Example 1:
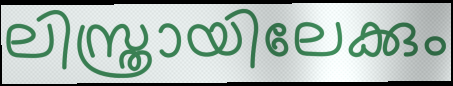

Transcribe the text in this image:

ലിസ്ത്രായിലേക്കും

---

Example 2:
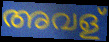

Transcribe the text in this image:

അവള്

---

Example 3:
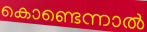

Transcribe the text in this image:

കൊണ്ടെന്നാൽ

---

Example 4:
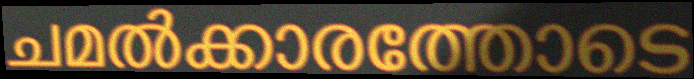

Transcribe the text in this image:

ചമൽക്കാരത്തോടെ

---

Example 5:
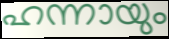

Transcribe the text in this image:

ഹന്നായും